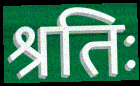
श्रतिः